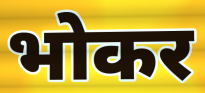
भोकर